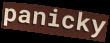
panicky